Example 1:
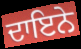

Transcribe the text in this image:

ਦਾਇਨੇ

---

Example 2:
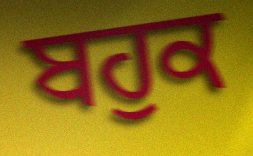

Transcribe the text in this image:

ਬਹੁਕ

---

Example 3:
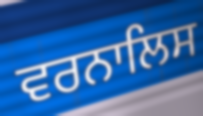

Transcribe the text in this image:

ਵਰਨਾਲਿਸ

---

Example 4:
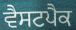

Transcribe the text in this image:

ਵੈਸਟਪੈਕ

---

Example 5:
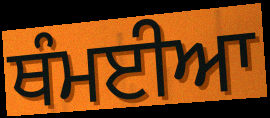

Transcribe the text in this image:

ਥੰਮਈਆ